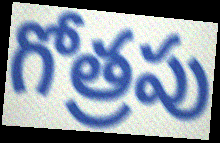
గోత్రపు